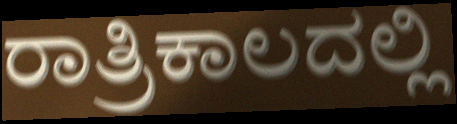
ರಾತ್ರಿಕಾಲದಲ್ಲಿ